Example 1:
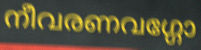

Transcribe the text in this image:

നീവരണവഗ്ഗോ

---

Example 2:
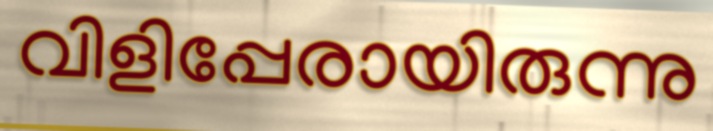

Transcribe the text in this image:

വിളിപ്പേരായിരുന്നു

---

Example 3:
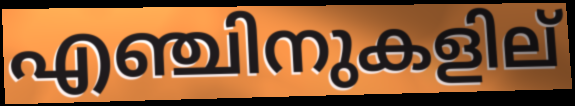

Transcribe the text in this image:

എഞ്ചിനുകളില്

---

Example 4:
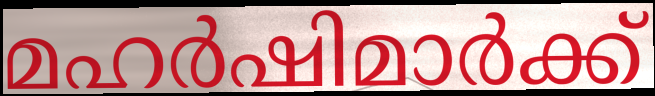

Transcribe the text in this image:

മഹർഷിമാർക്ക്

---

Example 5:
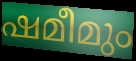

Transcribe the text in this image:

ഷമീമും